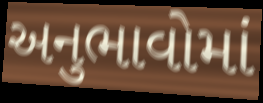
અનુભાવોમાં